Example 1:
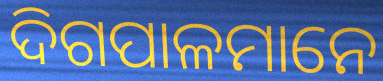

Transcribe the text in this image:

ଦିଗପାଳମାନେ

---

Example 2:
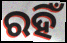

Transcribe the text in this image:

ରହିଁ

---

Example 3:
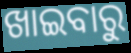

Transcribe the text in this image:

ଖାଇବାରୁ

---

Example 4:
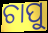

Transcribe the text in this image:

ଚାପୁ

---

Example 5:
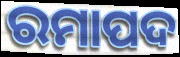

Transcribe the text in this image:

ରମାପଦ